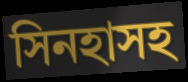
সিনহাসহ